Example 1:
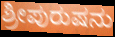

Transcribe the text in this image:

ಶ್ರೀಪುರುಷನು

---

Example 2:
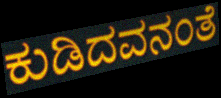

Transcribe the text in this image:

ಕುಡಿದವನಂತೆ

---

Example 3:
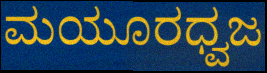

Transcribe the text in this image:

ಮಯೂರಧ್ವಜ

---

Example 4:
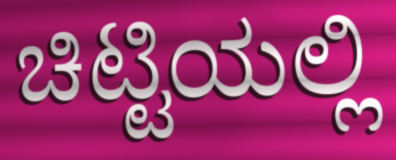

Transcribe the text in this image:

ಚಿಟ್ಟಿಯಲ್ಲಿ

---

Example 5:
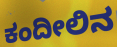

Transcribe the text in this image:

ಕಂದೀಲಿನ